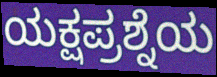
ಯಕ್ಷಪ್ರಶ್ನೆಯ